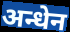
अन्धेन